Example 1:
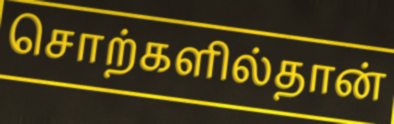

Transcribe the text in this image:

சொற்களில்தான்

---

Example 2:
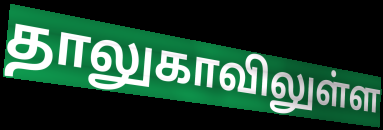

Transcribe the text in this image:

தாலுகாவிலுள்ள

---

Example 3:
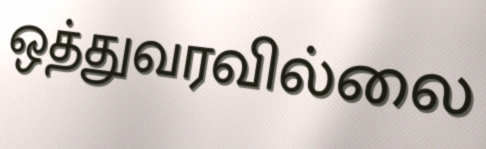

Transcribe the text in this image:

ஒத்துவரவில்லை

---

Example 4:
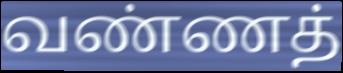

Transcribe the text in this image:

வண்ணத்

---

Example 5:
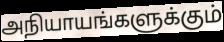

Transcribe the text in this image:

அநியாயங்களுக்கும்